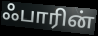
ஃபாரின்